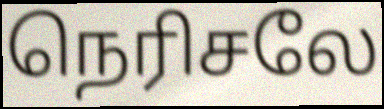
நெரிசலே